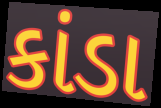
કાંડા